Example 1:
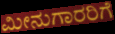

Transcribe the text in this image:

ಮೀನುಗಾರರಿಗೆ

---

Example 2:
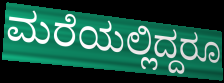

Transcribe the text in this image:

ಮರೆಯಲ್ಲಿದ್ದರೂ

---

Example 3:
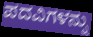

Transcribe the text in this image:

ಪದವಿಗಳನ್ನು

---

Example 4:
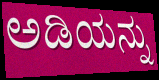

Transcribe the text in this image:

ಅಡಿಯನ್ನು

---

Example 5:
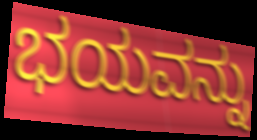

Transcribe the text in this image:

ಭಯವನ್ನು